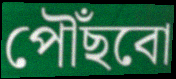
পৌঁছবো